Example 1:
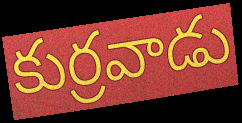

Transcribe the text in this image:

కుర్రవాడు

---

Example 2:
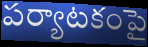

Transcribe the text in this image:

పర్యాటకంపై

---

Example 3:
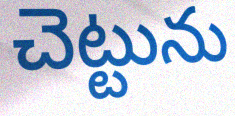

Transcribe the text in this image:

చెట్టును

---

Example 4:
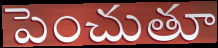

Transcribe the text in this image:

పెంచుతూ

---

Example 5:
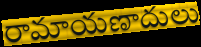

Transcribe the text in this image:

రామాయణాదులు